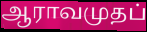
ஆராவமுதப்